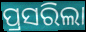
ପ୍ରସରିଲା